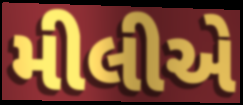
મીલીએ